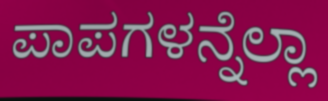
ಪಾಪಗಳನ್ನೆಲ್ಲಾ